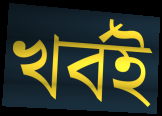
খর্বই